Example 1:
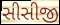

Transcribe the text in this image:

સીસીજી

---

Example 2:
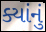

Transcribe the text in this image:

ક્યાંનું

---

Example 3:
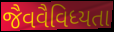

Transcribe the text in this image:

જૈવવૈવિધ્યતા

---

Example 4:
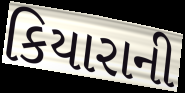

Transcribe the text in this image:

કિયારાની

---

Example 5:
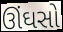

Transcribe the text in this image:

ઊંઘસો